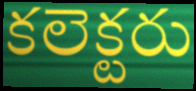
కలెక్టరు